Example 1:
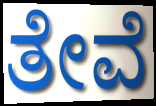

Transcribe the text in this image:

ತೇವೆ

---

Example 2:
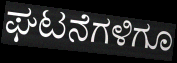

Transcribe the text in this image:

ಘಟನೆಗಳಿಗೂ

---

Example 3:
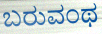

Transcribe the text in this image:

ಬರುವಂಥ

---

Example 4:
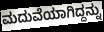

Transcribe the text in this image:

ಮದುವೆಯಾಗಿದ್ದನ್ನು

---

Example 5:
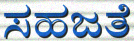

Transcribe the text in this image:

ಸಹಜತೆ